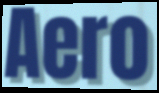
Aero